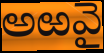
అఱవై